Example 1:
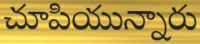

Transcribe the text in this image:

చూపియున్నారు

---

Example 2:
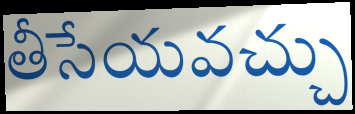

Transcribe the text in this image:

తీసేయవచ్చు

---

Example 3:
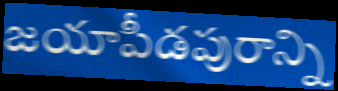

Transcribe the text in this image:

జయాపీడపురాన్ని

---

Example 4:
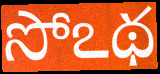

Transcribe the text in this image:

సోఽథ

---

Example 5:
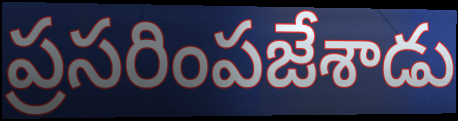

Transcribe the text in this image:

ప్రసరింపజేశాడు